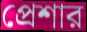
প্রেশার